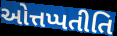
ઓત્તપ્પતીતિ